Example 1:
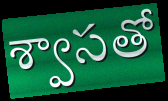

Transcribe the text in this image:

శ్వాసతో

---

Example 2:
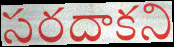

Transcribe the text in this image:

సరదాకని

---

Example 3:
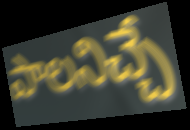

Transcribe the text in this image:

పాలనిచ్చే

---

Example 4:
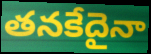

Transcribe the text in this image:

తనకేదైనా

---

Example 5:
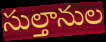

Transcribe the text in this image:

సుల్తానుల